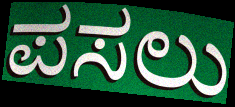
ಪಸಲು